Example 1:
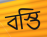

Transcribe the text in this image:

বস্তি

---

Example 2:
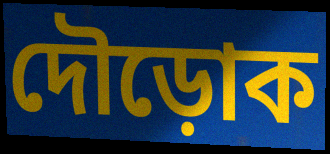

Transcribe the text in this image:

দৌড়োক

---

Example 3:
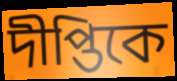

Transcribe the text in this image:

দীপ্তিকে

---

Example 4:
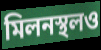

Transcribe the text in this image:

মিলনস্থলও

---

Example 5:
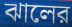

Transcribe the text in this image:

ঝালের